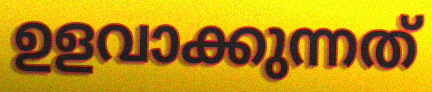
ഉളവാക്കുന്നത്